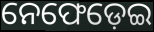
ନେଫେଡ଼େଇ